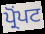
ਪ੍ਰੋਂਪਟ